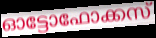
ഓട്ടോഫോക്കസ്